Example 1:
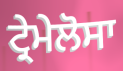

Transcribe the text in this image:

ਟ੍ਰੇਮੇਲੋਸਾ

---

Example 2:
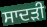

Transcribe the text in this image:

ਸਾਦੜੀ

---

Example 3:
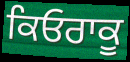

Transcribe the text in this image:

ਕਿਓਰਾਕੂ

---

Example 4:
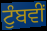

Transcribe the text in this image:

ਟੁੰਬਵੀਂ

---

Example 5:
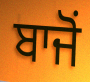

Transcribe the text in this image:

ਬਾਜੋਂ